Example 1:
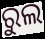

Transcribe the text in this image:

ରୁଲ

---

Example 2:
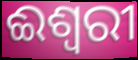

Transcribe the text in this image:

ଈଶ୍ଵରୀ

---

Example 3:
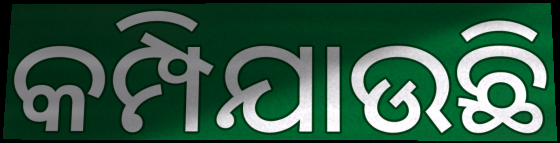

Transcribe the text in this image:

କମ୍ପିଯାଉଛି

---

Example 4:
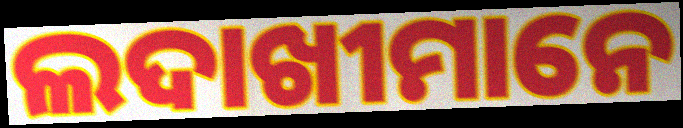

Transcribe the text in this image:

ଲଦାଖୀମାନେ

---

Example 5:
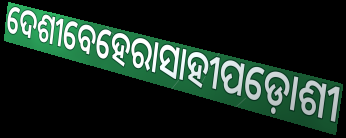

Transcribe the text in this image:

ଦେଶୀବେହେରାସାହୀପଡ଼ୋଶୀ